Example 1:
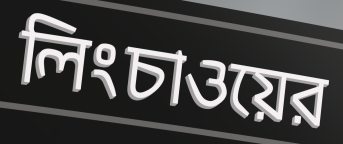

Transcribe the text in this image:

লিংচাওয়ের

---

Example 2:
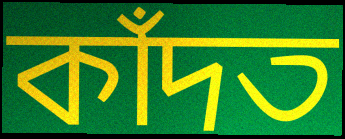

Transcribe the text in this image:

কাঁদত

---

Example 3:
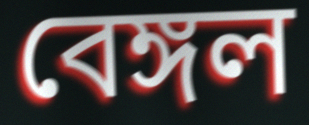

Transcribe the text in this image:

বেঙ্গল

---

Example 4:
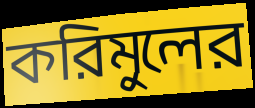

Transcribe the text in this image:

করিমুলের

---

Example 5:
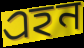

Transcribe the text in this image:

এহন